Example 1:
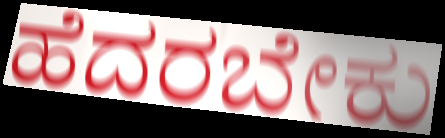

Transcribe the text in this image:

ಹೆದರಬೇಕು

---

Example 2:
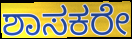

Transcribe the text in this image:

ಶಾಸಕರೇ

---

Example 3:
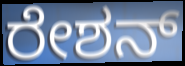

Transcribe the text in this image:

ರೇಶನ್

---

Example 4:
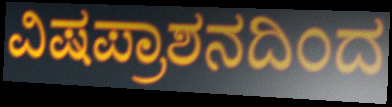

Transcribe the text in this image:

ವಿಷಪ್ರಾಶನದಿಂದ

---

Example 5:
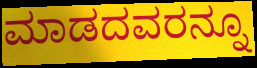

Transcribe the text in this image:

ಮಾಡದವರನ್ನೂ